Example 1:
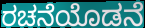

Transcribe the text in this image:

ರಚನೆಯೊಡನೆ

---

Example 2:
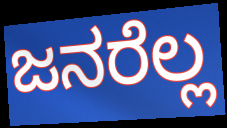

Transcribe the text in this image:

ಜನರೆಲ್ಲ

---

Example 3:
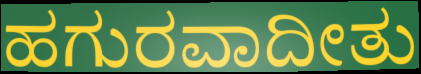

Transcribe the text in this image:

ಹಗುರವಾದೀತು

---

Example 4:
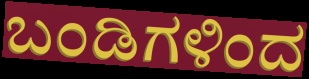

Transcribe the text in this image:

ಬಂಡಿಗಳಿಂದ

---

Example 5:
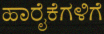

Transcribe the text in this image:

ಹಾರೈಕೆಗಳಿಗೆ